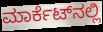
ಮಾರ್ಕೆಟ್‍ನಲ್ಲಿ